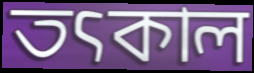
তৎকাল